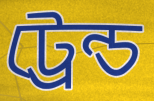
ট্রেন্ড